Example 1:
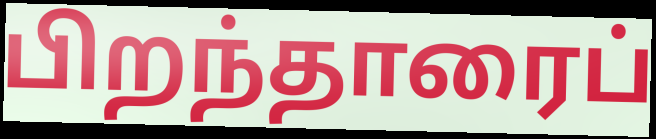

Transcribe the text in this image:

பிறந்தாரைப்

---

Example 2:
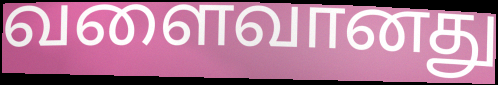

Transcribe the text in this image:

வளைவானது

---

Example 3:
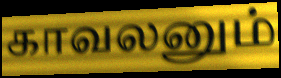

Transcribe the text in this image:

காவலனும்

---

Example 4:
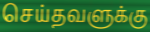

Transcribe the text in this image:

செய்தவளுக்கு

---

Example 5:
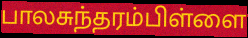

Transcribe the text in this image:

பாலசுந்தரம்பிள்ளை